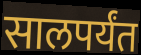
सालपर्यंत